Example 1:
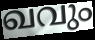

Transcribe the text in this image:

ഖവും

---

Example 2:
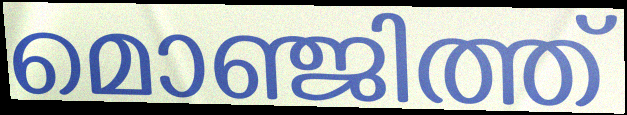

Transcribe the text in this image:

മൊഞ്ജിത്ത്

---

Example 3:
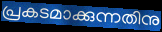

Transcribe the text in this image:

പ്രകടമാക്കുന്നതിനു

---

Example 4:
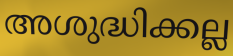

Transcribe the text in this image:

അശുദ്ധിക്കല്ല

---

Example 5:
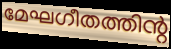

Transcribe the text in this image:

മേഘഗീതത്തിന്റ